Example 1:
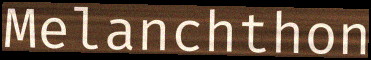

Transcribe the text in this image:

Melanchthon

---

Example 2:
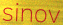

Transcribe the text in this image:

sinov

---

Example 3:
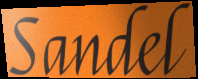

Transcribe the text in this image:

Sandel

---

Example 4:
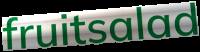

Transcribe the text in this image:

fruitsalad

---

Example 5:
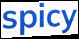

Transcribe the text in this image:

spicy